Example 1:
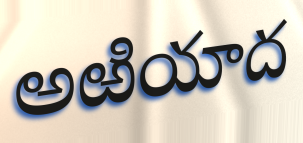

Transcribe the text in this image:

అఱియాద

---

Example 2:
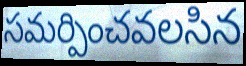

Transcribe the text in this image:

సమర్పించవలసిన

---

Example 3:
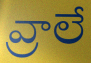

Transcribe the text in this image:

వ్రాలే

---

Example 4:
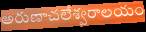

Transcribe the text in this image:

అరుణాచలేశ్వరాలయం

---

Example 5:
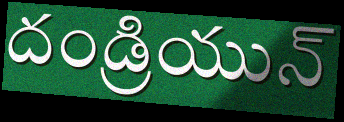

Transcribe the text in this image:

దండ్రియున్